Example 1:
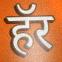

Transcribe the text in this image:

हॅर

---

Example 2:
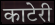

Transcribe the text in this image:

काटेरी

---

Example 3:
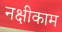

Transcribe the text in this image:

नक्षीकाम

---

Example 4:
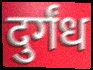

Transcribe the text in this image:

दुर्गंध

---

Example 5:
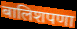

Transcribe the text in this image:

बालिशपणा